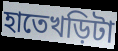
হাতেখড়িটা